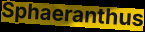
Sphaeranthus